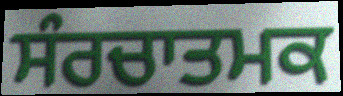
ਸੰਰਚਾਤਮਕ